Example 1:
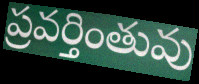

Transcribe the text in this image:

ప్రవర్తింతువు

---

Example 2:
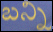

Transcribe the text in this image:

బన్ని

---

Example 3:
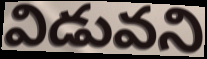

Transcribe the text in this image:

విడువని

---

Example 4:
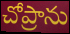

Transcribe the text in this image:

చోప్రాను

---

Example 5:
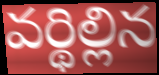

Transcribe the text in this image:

వర్థిల్లిన